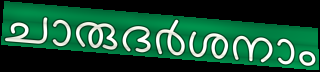
ചാരുദർശനാം